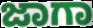
ಜಾಗಾ